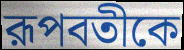
রূপবতীকে